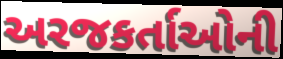
અરજકર્તાઓની